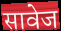
सावेज